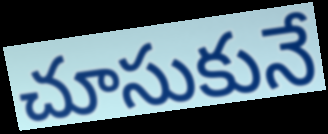
చూసుకునే